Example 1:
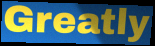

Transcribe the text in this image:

Greatly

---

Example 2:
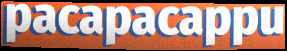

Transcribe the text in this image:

pacapacappu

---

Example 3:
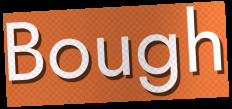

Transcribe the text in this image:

Bough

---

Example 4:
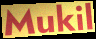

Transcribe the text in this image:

Mukil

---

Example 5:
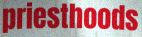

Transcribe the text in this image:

priesthoods